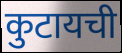
कुटायची